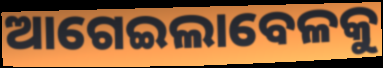
ଆଗେଇଲାବେଳକୁ